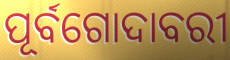
ପୂର୍ବଗୋଦାବରୀ